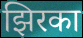
झिरका